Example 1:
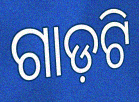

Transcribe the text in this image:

ଗାଡ଼ଟି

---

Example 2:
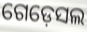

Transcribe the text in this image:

ଗେଡ଼େସଲ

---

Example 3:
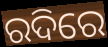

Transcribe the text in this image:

ରଦିରେ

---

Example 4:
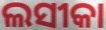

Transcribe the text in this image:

ଲସୀକା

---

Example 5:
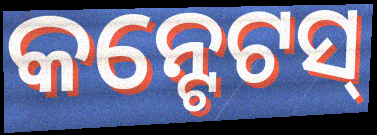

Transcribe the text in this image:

କନ୍ଟେଟସ୍